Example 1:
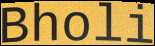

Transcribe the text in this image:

Bholi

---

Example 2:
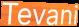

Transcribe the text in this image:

Tevani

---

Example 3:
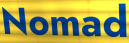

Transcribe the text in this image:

Nomad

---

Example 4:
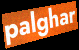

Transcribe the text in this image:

palghar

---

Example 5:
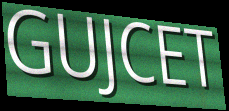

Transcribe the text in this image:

GUJCET